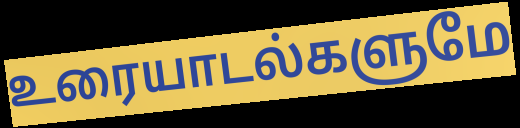
உரையாடல்களுமே